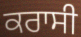
ਕਰਾਸੀ